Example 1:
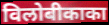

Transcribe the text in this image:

विलोबीकाका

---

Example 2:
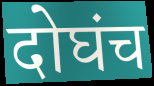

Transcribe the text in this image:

दोघंच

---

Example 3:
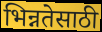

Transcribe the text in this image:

भिन्नतेसाठी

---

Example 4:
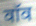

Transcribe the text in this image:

वॉव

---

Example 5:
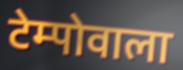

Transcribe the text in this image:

टेम्पोवाला